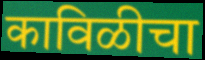
काविळीचा